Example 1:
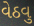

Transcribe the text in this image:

વેઠવુ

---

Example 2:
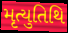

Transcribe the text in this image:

મૃત્યુતિથિ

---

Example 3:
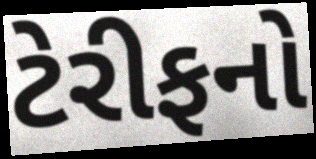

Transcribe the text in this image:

ટેરીફનો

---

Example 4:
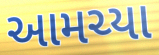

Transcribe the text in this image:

આમચ્યા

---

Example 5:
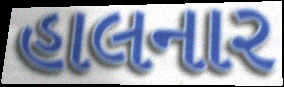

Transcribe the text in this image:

હાલનાર